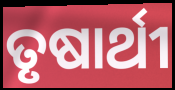
ତୃଷାର୍ଥୀ